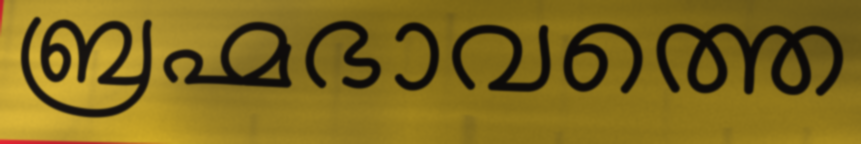
ബ്രഹ്മഭാവത്തെ